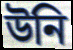
উনি